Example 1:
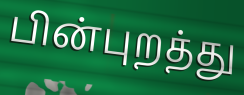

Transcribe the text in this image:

பின்புறத்து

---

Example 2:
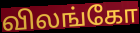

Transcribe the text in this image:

விலங்கோ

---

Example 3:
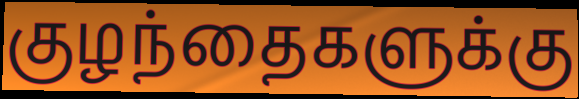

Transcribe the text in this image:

குழந்தைகளுக்கு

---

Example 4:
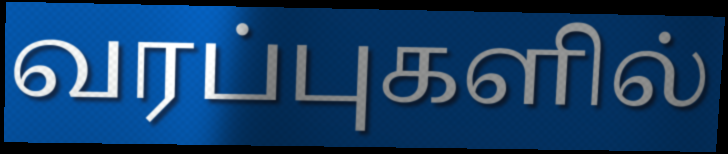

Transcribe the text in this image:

வரப்புகளில்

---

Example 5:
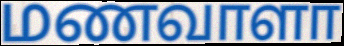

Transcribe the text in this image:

மணவாளா